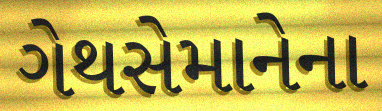
ગેથસેમાનેના